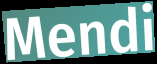
Mendi